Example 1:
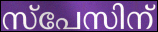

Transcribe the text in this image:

സ്പേസിന്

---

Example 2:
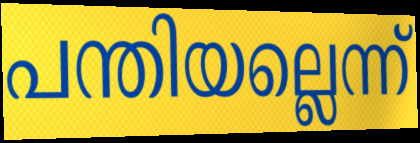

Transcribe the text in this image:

പന്തിയല്ലെന്ന്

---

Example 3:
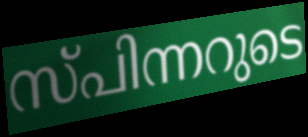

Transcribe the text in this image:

സ്പിന്നറുടെ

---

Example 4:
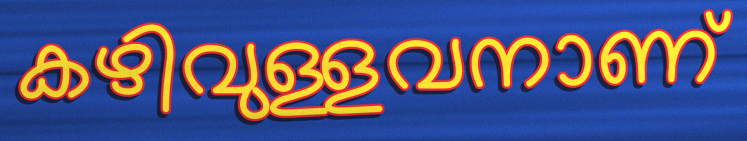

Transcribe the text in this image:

കഴിവുള്ളവനാണ്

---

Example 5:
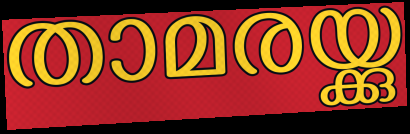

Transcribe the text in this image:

താമരയ്ക്കു